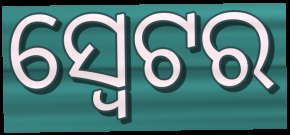
ସ୍ଵେଟର